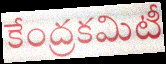
కేంద్రకమిటీ